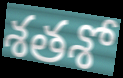
శతశో